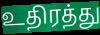
உதிரத்து